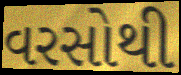
વરસોથી